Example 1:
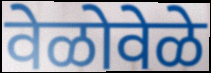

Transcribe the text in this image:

वेळोवेळे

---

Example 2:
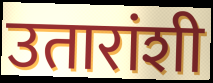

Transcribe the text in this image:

उतारांशी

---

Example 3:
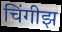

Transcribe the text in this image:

चिंगीझ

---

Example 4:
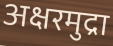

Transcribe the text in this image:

अक्षरमुद्रा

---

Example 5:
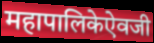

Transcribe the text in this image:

महापालिकेऐवजी